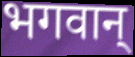
भगवान्